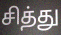
சித்து